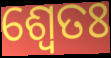
ଶ୍ଵେତଃ